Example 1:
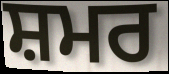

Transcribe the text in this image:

ਸ਼ਮਰ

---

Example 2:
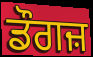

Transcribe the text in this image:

ਡੌਗਜ਼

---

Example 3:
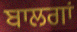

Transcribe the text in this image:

ਬਾਲਗਾਂ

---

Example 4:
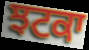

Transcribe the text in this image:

ਝਟਕਾ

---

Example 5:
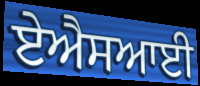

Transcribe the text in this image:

ਏਐਸਆਈ